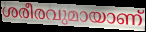
ശരീരവുമായാണ്